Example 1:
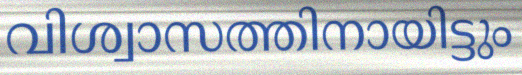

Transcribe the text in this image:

വിശ്വാസത്തിനായിട്ടും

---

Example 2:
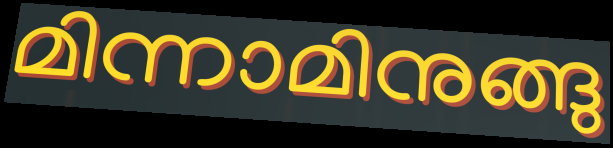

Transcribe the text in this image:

മിന്നാമിനുങ്ങു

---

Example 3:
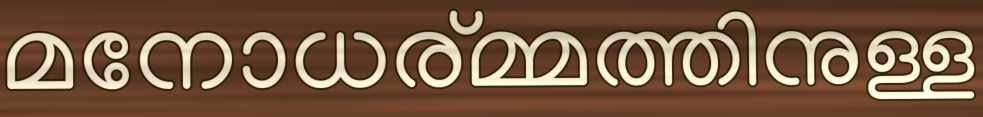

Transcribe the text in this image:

മനോധര്മ്മത്തിനുള്ള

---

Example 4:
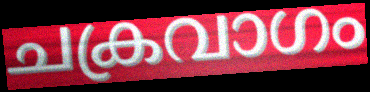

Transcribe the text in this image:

ചക്രവാഗം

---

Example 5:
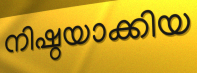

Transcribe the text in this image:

നിഷ്ഠയാക്കിയ